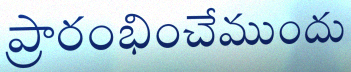
ప్రారంభించేముందు